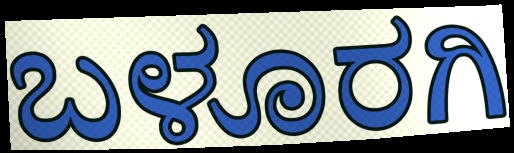
ಬಳೂರಗಿ